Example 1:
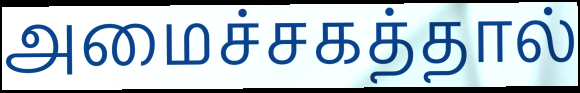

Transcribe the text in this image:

அமைச்சகத்தால்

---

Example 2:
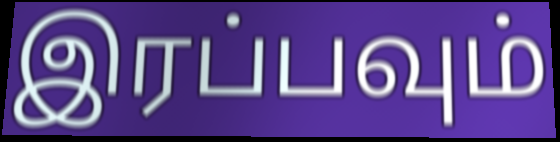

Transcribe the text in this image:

இரப்பவும்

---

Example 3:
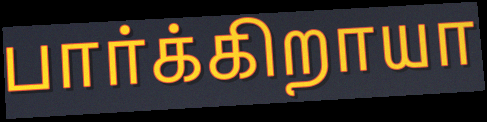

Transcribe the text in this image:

பார்க்கிறாயா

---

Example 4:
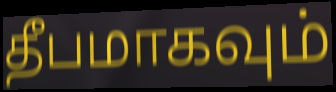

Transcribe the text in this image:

தீபமாகவும்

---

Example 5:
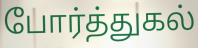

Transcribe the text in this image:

போர்த்துகல்